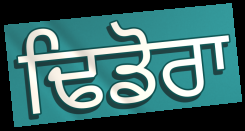
ਢਿਡੋਰਾ